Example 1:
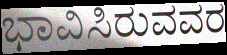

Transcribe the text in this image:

ಭಾವಿಸಿರುವವರ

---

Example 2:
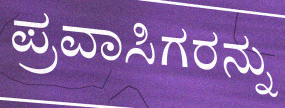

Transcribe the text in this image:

ಪ್ರವಾಸಿಗರನ್ನು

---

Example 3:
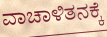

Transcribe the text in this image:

ವಾಚಾಳಿತನಕ್ಕೆ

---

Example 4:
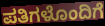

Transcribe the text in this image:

ಪತಿಗಳೊಂದಿಗೆ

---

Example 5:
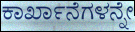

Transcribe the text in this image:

ಕಾರ್ಖಾನೆಗಳನ್ನೇ